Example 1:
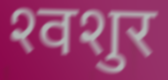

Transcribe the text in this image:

श्वशुर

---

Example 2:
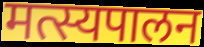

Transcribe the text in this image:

मत्स्यपालन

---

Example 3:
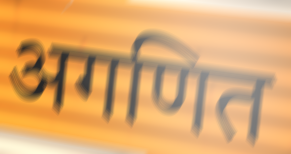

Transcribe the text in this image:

अगणित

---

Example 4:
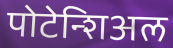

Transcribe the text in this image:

पोटेन्शिअल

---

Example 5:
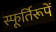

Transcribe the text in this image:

स्फूर्तिरूपें